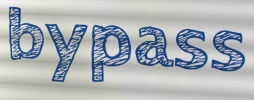
bypass